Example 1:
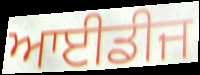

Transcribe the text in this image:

ਆਈਡੀਜ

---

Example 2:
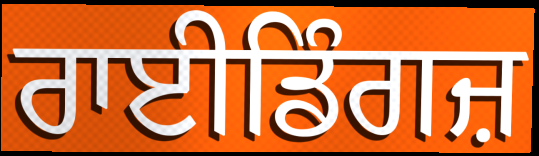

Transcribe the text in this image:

ਰਾਈਡਿੰਗਜ਼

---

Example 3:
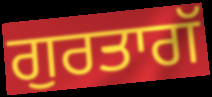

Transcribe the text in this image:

ਗੁਰਤਾਗੱ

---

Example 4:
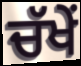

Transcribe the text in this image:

ਚੱਖੇਂ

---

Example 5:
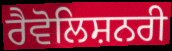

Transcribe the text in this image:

ਰੈਵੋਲਿਸ਼ਨਰੀ